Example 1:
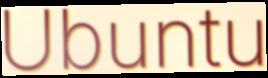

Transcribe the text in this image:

Ubuntu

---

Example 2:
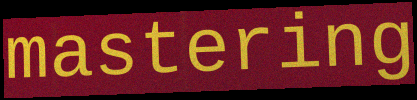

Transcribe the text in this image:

mastering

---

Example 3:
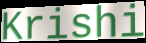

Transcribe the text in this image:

Krishi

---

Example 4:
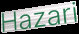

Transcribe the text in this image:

Hazari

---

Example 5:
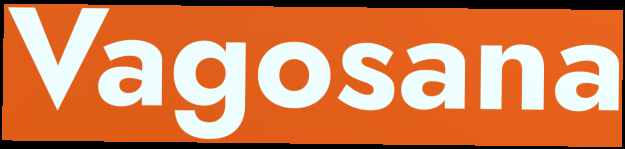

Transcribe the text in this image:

Vagosana